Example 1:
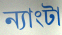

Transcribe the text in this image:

ন্যাংটা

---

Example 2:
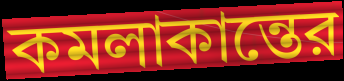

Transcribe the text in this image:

কমলাকান্তের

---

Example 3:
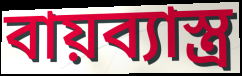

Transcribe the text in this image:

বায়ব্যাস্ত্র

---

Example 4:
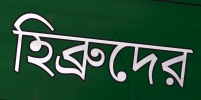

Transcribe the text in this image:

হিব্রুদের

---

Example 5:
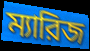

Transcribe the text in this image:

ম্যারিজ